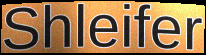
Shleifer